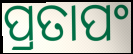
ପ୍ରତାପଂ